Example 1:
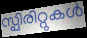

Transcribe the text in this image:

സ്പിരിറ്റുകൾ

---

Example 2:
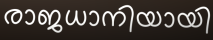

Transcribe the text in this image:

രാജധാനിയായി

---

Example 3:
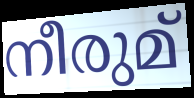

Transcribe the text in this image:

നീരുമ്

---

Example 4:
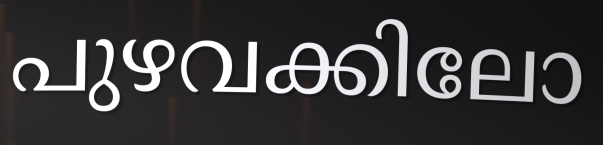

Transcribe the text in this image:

പുഴവക്കിലോ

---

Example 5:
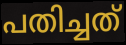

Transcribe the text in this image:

പതിച്ചത്